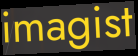
imagist